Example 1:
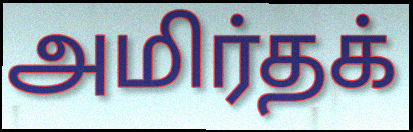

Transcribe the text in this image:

அமிர்தக்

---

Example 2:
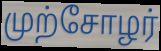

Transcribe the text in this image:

முற்சோழர்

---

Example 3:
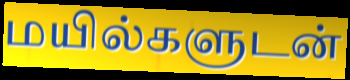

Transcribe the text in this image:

மயில்களுடன்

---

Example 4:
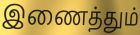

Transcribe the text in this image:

இணைத்தும்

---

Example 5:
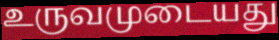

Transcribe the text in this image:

உருவமுடையது